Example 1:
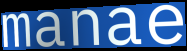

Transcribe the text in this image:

manae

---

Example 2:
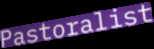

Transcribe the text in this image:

Pastoralist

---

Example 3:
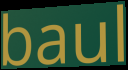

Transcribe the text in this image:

baul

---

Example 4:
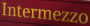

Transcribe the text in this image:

Intermezzo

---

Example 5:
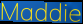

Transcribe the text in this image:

Maddie